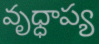
వృధ్ధాప్య